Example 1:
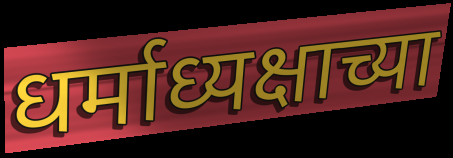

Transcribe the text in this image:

धर्माध्यक्षाच्या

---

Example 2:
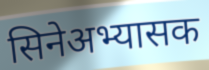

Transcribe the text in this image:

सिनेअभ्यासक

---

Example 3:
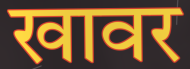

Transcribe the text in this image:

खावर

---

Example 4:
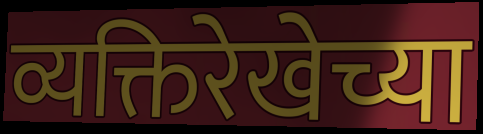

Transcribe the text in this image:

व्यक्तिरेखेच्या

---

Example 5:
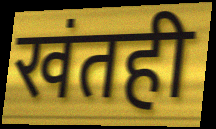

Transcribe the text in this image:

खंतही